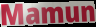
Mamun